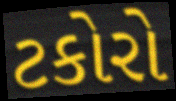
ટકોરો